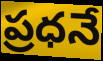
ప్రధనే